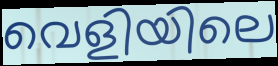
വെളിയിലെ